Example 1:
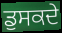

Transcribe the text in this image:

ਡੁਸਕਦੇ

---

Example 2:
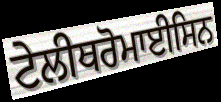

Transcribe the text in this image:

ਟੇਲੀਥਰੋਮਾਈਸਿਨ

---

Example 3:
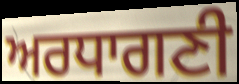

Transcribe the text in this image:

ਅਰਧਾਗਣੀ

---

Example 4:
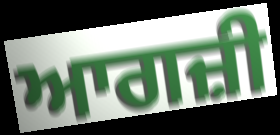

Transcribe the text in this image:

ਆਗਜ਼ੀ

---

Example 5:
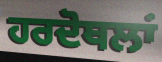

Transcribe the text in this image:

ਹਰਦੋਥਲਾਂ